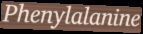
Phenylalanine